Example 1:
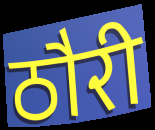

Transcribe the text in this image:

ठौरी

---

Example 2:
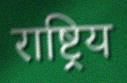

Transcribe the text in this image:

राष्ट्रिय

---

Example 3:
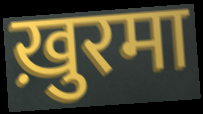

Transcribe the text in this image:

ख़ुरमा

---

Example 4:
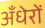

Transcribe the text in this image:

अँधेरों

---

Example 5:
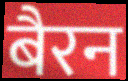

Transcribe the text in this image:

बैरन